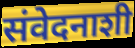
संवेदनाशी